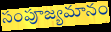
సంపూజ్యమానం